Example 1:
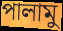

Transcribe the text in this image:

পালামু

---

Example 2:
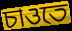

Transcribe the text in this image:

চাওতে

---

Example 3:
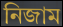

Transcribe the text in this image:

নিজাম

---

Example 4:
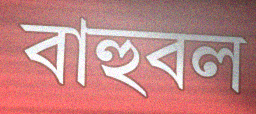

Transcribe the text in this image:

বাহুবল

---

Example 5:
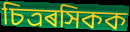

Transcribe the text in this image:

চিত্ৰৰসিকক